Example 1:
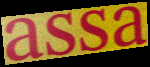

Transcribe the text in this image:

assa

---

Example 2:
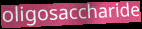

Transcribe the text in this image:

oligosaccharide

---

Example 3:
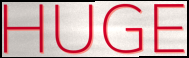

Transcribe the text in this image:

HUGE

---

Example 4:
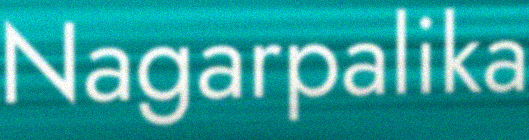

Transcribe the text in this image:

Nagarpalika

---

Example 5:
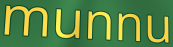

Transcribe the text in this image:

munnu